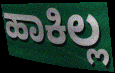
ಹಾಕಿಲ್ಲ